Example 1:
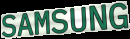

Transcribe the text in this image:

SAMSUNG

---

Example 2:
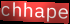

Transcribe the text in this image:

chhape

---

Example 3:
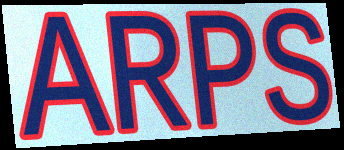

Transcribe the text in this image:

ARPS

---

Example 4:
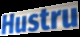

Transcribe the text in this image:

Hustru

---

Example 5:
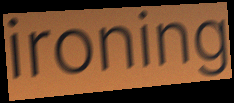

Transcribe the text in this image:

ironing